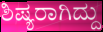
ಶಿಷ್ಯರಾಗಿದ್ದು